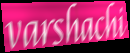
varshachi